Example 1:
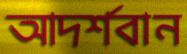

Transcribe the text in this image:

আদর্শবান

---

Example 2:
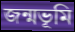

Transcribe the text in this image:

জন্মভূমি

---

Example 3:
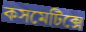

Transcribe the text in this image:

কসমেটিক্সে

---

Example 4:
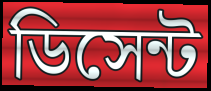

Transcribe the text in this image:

ডিসেন্ট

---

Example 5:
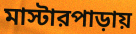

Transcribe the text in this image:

মাস্টারপাড়ায়